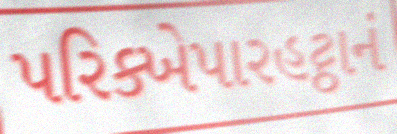
પરિક્ખેપારહટ્ઠાનં